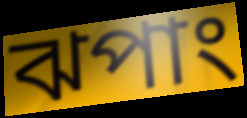
ঝপাং